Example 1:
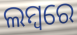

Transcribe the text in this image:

ଲମ୍ବରେ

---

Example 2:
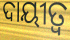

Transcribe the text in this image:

ଦାୟୀତ୍ୱ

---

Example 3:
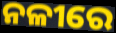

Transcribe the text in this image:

ନଳୀରେ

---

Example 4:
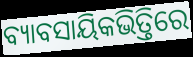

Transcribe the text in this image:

ବ୍ୟାବସାୟିକଭିତ୍ତିରେ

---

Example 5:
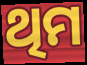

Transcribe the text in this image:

ଥିମ